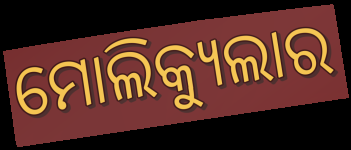
ମୋଲିକ୍ୟୁଲାର